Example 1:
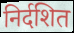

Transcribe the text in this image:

निर्दशित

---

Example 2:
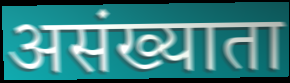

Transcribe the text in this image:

असंख्याता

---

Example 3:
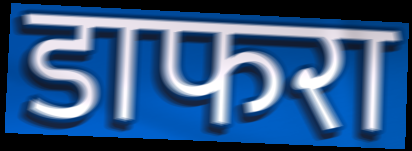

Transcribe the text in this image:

डाफरा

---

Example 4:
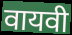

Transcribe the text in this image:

वायवी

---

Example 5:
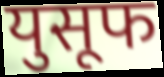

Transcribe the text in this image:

युसूफ